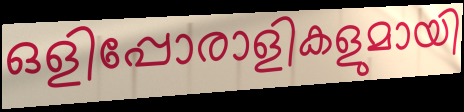
ഒളിപ്പോരാളികളുമായി